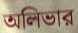
অলিভার